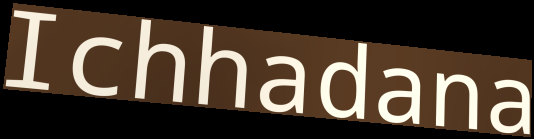
Ichhadana